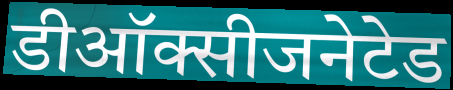
डीऑक्सीजनेटेड